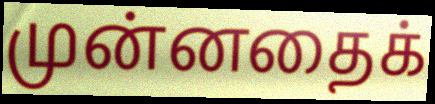
முன்னதைக்